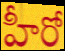
హీరో